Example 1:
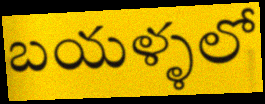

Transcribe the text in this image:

బయళ్ళలో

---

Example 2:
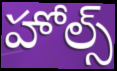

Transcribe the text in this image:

హోల్స్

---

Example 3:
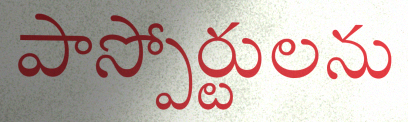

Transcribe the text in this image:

పాస్పోర్టులను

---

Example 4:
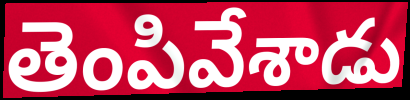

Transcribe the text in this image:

తెంపివేశాడు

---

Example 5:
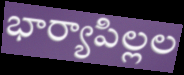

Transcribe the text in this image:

భార్యాపిల్లల